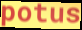
potus